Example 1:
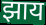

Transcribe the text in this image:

झाय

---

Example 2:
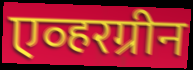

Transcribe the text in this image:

एव्हरग्रीन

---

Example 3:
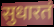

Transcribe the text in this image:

सुधारतं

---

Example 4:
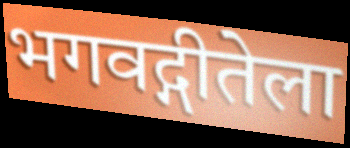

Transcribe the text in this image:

भगवद्गीतेला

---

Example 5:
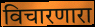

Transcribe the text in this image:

विचारणारा